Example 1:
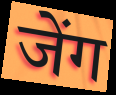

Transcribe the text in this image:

जेंग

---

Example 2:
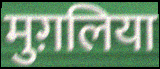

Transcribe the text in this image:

मुग़लिया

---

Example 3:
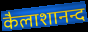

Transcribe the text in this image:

कैलाशानन्द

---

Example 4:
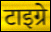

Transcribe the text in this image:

टाइग्रे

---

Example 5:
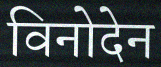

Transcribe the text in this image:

विनोदेन